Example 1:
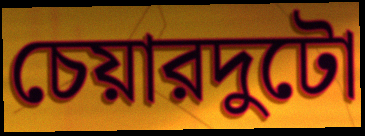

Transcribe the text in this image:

চেয়ারদুটো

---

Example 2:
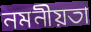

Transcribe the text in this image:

নমনীয়তা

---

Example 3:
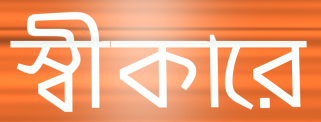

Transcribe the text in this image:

স্বীকারে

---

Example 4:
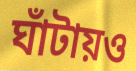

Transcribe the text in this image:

ঘাঁটায়ও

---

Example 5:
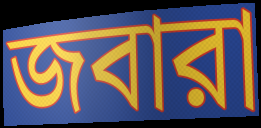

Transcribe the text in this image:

জবারা